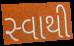
સ્વાથી